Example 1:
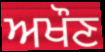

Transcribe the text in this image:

ਅਖੌਣ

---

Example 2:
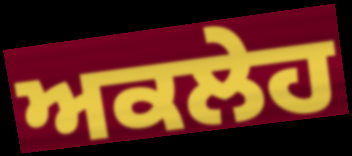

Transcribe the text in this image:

ਅਕਲੇਹ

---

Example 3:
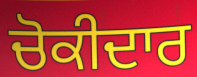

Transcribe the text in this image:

ਚੋਕੀਦਾਰ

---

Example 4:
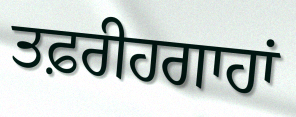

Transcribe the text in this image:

ਤਫ਼ਰੀਹਗਾਹਾਂ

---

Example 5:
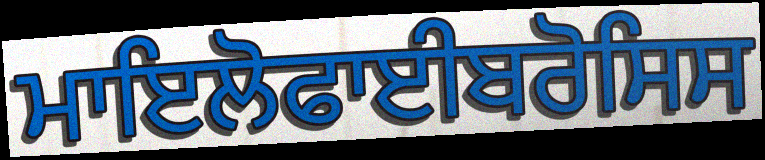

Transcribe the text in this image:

ਮਾਇਲੋਫਾਈਬਰੋਸਿਸ